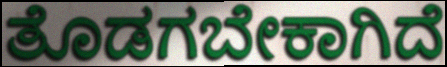
ತೊಡಗಬೇಕಾಗಿದೆ